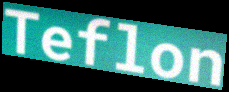
Teflon